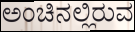
ಅಂಚಿನಲ್ಲಿರುವ